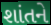
શાંતને